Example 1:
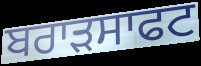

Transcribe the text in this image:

ਬਰਾੜਸਾਫਟ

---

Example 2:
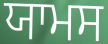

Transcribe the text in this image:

ਯਾਮਸ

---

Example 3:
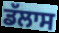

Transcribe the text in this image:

ਡੱਲਾਸ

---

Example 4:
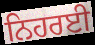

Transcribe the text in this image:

ਨਿਹਰਈ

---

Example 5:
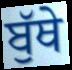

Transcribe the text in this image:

ਬੁੱਥੇ